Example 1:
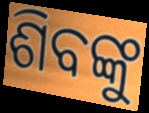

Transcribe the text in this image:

ଶିବଙ୍କୁ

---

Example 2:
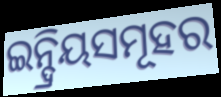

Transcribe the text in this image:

ଇନ୍ଦ୍ରିୟସମୂହର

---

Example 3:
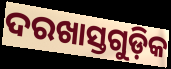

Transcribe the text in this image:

ଦରଖାସ୍ତଗୁଡ଼ିକ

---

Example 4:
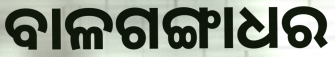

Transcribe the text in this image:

ବାଳଗଙ୍ଗାଧର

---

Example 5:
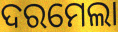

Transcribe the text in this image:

ଦରମେଲା